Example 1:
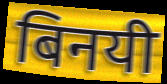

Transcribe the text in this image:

बिनयी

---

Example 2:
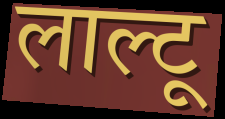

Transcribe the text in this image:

लाल्‍टू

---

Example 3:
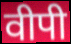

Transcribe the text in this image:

वीपी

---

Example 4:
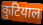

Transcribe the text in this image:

कुटियाल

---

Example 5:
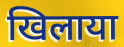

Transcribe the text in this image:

खिलाया